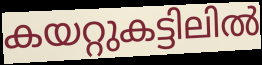
കയറ്റുകട്ടിലിൽ